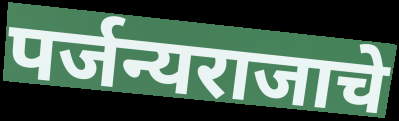
पर्जन्यराजाचे